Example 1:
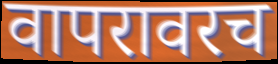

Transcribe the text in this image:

वापरावरच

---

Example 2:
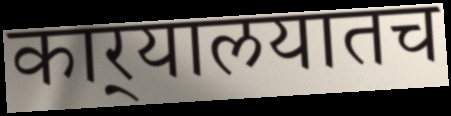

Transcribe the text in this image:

कार्यालयातच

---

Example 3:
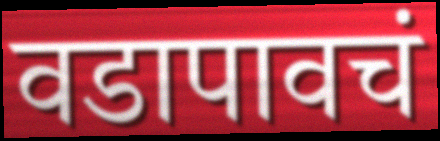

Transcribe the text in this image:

वडापावचं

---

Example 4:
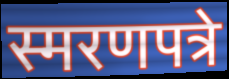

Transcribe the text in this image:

स्मरणपत्रे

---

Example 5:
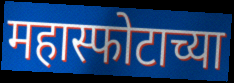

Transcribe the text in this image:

महास्फोटाच्या